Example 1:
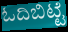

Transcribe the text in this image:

ಓದಿಬಿಟ್ಟೆ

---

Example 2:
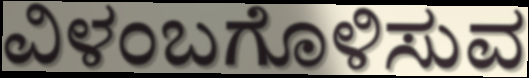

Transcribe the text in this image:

ವಿಳಂಬಗೊಳಿಸುವ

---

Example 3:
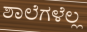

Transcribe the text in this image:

ಶಾಲೆಗಳೆಲ್ಲ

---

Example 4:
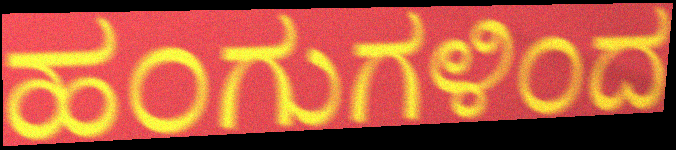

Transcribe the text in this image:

ಹಂಗುಗಳಿಂದ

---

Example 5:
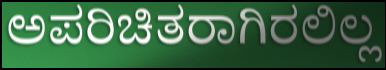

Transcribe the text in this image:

ಅಪರಿಚಿತರಾಗಿರಲಿಲ್ಲ